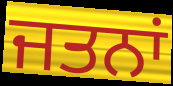
ਜਤਨਾਂ